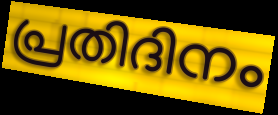
പ്രതിദിനം